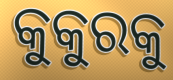
କୁକୁରକୁ